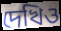
দেখিও